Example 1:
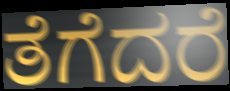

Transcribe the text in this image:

ತೆಗೆದರೆ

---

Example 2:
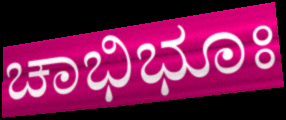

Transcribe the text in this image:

ಚಾಭಿಭೂಃ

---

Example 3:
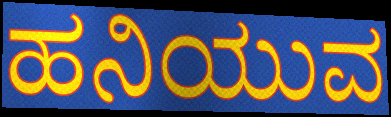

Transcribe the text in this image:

ಹನಿಯುವ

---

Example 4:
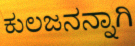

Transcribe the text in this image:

ಕುಲಜನನ್ನಾಗಿ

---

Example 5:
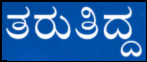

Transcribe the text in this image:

ತರುತಿದ್ದ